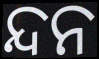
ନ୍ଦନ